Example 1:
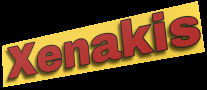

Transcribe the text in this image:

Xenakis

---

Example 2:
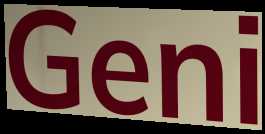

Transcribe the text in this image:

Geni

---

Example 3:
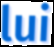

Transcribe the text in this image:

lui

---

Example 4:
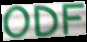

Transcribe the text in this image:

ODF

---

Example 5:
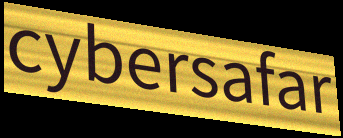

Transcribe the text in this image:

cybersafar